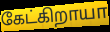
கேட்கிறாயா